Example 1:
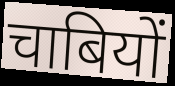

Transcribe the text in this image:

चाबियों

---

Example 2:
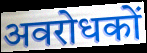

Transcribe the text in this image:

अवरोधकों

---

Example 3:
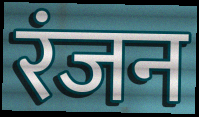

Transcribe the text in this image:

रंजन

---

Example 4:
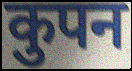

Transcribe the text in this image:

कुपन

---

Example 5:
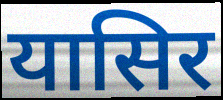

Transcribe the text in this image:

यासिर